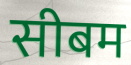
सीबम